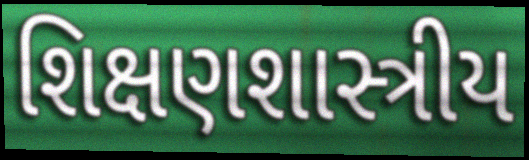
શિક્ષણશાસ્ત્રીય